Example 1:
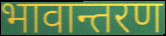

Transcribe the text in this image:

भावान्तरण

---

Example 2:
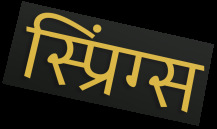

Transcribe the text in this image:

स्प्रिंग्स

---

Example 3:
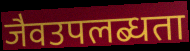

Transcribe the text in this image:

जैवउपलब्धता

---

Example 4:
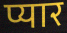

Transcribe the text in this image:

प्यार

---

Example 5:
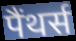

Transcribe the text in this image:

पैंथर्स